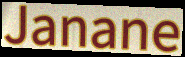
Janane